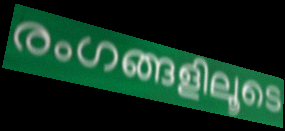
രംഗങ്ങളിലൂടെ